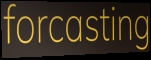
forcasting